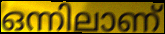
ഒന്നിലാണ്